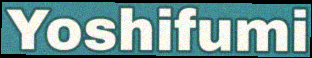
Yoshifumi